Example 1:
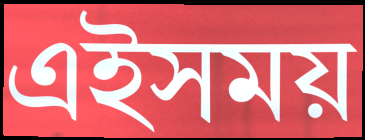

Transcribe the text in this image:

এইসময়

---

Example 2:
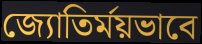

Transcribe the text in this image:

জ্যোতির্ময়ভাবে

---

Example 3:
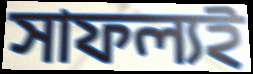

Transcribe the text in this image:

সাফল্যই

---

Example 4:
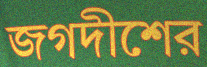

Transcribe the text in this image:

জগদীশের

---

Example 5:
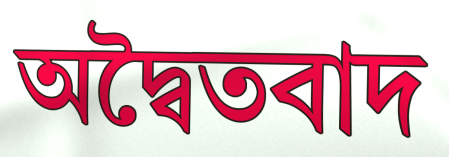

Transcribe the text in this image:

অদ্বৈতবাদ